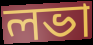
লভা